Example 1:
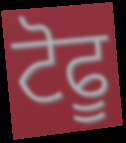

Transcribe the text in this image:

ਟੋਫੂ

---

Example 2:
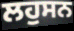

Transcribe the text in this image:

ਲਹੁਸਨ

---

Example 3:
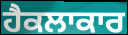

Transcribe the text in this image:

ਹੈਕਲਾਕਾਰ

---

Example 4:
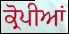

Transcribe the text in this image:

ਕ੍ਰੋਪੀਆਂ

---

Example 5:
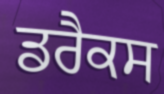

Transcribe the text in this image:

ਡਰੈਕਸ